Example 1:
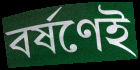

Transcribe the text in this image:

বর্ষণেই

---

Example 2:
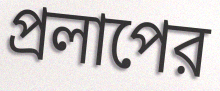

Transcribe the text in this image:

প্রলাপের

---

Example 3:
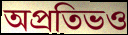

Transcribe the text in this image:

অপ্রতিভও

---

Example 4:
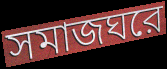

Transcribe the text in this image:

সমাজঘরে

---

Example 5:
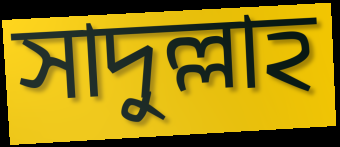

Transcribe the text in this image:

সাদুল্লাহ